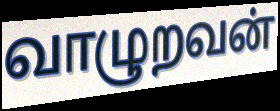
வாழுறவன்